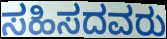
ಸಹಿಸದವರು